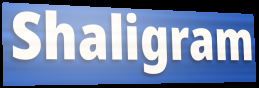
Shaligram